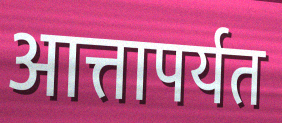
आत्तापर्यत